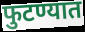
फुटण्यात